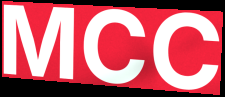
MCC